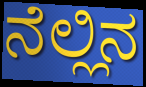
ನೆಲ್ಲಿನ